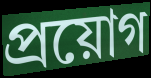
প্রয়োগ